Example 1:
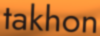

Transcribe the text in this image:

takhon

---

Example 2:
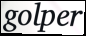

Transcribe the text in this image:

golper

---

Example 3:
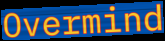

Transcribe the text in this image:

Overmind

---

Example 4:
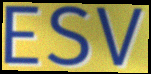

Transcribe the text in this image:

ESV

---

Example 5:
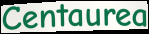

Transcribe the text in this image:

Centaurea